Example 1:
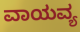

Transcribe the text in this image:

ವಾಯವ್ಯ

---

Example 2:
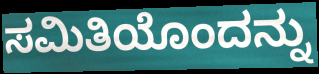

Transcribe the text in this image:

ಸಮಿತಿಯೊಂದನ್ನು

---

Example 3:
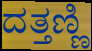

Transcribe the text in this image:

ದತ್ತಣ್ಣಿ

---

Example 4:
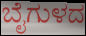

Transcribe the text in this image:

ಬೈಗುಳದ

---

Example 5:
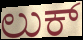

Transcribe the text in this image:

ಲುಕ್